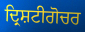
ਦ੍ਰਿਸ਼ਟੀਗੋਚਰ